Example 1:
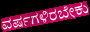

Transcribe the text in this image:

ವರ್ಷಗಳಿರಬೇಕು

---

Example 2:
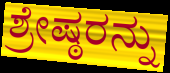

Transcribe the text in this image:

ಶ್ರೇಷ್ಠರನ್ನು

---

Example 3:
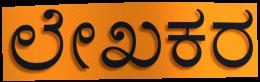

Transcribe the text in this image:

ಲೇಖಕರ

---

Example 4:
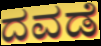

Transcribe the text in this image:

ದವಡೆ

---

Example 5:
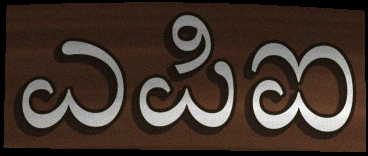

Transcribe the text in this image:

ಎಪಿಐ